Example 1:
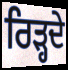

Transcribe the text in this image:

ਰਿੜ੍ਹਦੇ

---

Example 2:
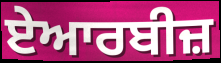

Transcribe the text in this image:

ਏਆਰਬੀਜ਼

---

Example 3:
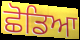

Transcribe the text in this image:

ਛੋਡਿਆ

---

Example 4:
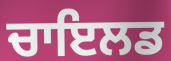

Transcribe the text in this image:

ਚਾਇਲਡ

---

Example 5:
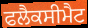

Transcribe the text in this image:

ਫਲੈਕਸੀਮੈਟ